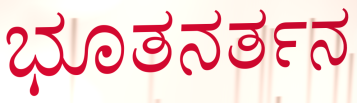
ಭೂತನರ್ತನ